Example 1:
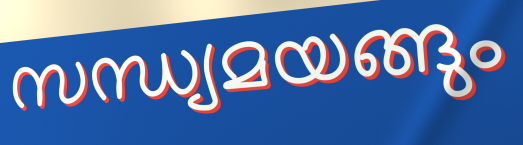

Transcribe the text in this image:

സന്ധ്യമയങ്ങും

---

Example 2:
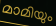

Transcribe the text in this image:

മാമിയും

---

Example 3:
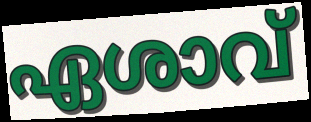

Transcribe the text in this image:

ഏശാവ്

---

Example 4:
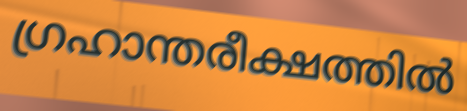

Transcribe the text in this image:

ഗ്രഹാന്തരീക്ഷത്തിൽ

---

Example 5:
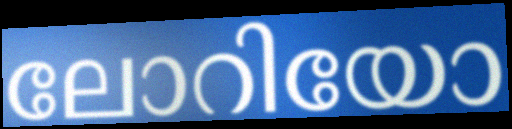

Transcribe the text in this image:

ലോറിയോ